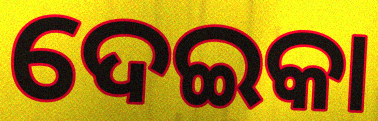
ଦେଇକା